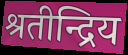
श्रतीन्द्रिय